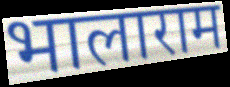
भालाराम